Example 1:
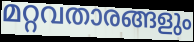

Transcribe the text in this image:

മറ്റവതാരങ്ങളും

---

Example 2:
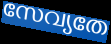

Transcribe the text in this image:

സേവ്യതേ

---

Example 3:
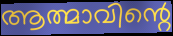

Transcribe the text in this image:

ആത്മാവിന്റെ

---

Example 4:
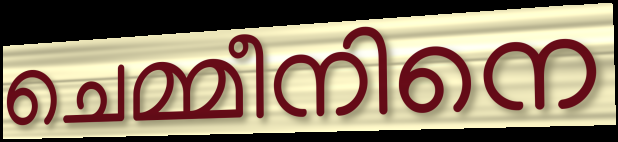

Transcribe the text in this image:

ചെമ്മീനിനെ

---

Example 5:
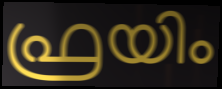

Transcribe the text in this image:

ഫ്രയിം